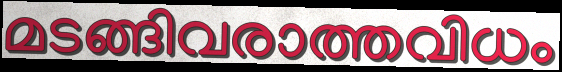
മടങ്ങിവരാത്തവിധം